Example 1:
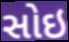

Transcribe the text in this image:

સોઇ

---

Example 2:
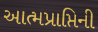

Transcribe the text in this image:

આત્મપ્રાપ્તિની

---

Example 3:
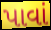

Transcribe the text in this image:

પાવાં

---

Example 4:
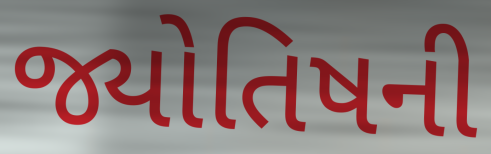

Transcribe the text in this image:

જ્યોતિષની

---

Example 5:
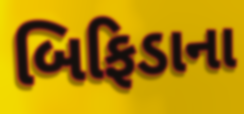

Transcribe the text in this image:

બિફિડાના